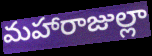
మహారాజుల్లా